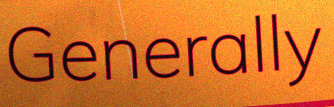
Generally